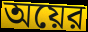
অয়ের